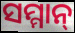
ସମ୍ମାନ୍